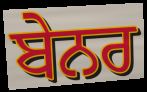
ਬੇਨਰ